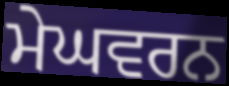
ਮੇਘਵਰਨ